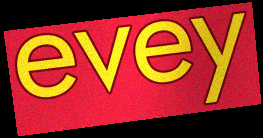
evey